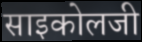
साइकोलजी